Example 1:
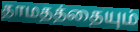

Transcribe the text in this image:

தாமதத்தையும்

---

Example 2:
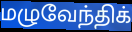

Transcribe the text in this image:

மழுவேந்திக்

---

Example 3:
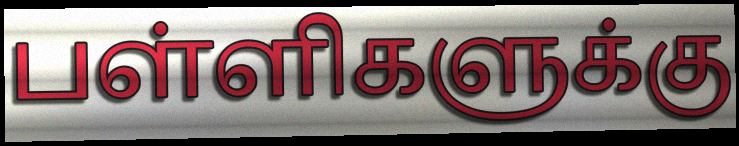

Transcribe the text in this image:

பள்ளிகளுக்கு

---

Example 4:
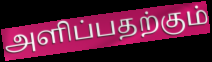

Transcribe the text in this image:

அளிப்பதற்கும்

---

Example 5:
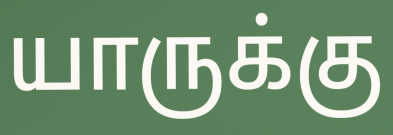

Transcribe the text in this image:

யாருக்கு